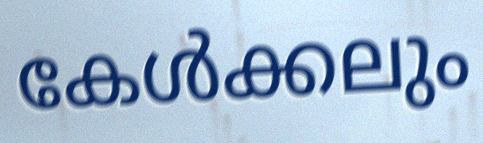
കേൾക്കലും